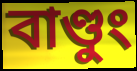
বাণ্ডুং